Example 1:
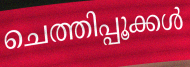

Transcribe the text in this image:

ചെത്തിപ്പൂക്കൾ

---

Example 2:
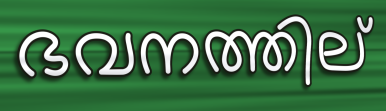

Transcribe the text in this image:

ഭവനത്തില്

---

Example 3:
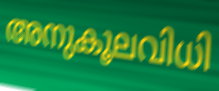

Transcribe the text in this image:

അനുകൂലവിധി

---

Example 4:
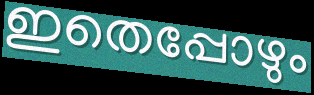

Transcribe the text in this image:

ഇതെപ്പോഴും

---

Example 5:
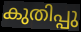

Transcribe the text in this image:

കുതിപ്പു